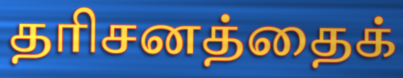
தரிசனத்தைக்